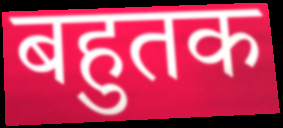
बहुतक